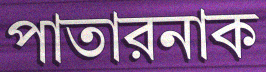
পাতারনাক